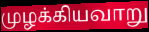
முழக்கியவாறு